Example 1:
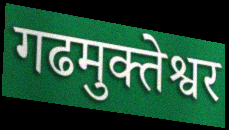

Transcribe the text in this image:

गढमुक्तेश्वर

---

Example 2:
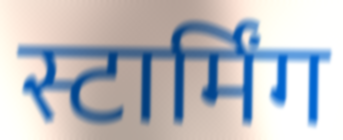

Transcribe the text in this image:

स्टार्मिंग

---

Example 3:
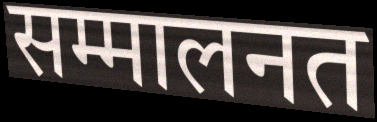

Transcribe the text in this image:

सम्मालनत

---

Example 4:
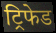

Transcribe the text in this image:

ट्रिफेड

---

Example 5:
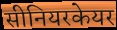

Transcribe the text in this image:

सीनियरकेयर